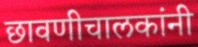
छावणीचालकांनी